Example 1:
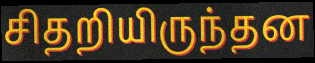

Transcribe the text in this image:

சிதறியிருந்தன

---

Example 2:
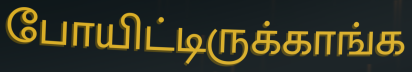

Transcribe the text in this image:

போயிட்டிருக்காங்க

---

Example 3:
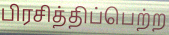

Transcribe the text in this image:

பிரசித்திப்பெற்ற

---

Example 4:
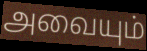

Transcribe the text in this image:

அவையும்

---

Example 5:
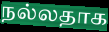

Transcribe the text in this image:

நல்லதாக